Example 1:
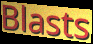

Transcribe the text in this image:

Blasts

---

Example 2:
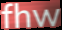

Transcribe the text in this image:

fhw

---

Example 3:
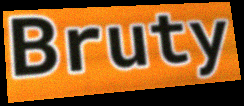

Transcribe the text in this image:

Bruty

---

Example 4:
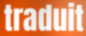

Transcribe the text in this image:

traduit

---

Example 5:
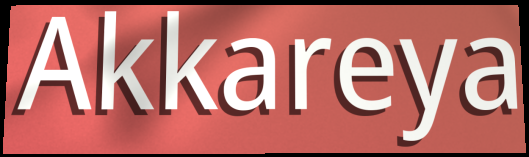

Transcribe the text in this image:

Akkareya